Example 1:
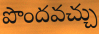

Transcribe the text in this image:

పొందవచ్చు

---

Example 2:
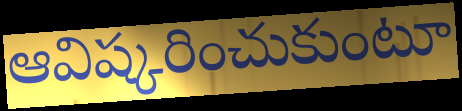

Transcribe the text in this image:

ఆవిష్కరించుకుంటూ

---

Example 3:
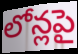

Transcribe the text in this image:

లోన్లపై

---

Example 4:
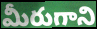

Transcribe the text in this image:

మీరుగాని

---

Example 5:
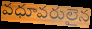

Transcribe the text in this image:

వధూవరులైన